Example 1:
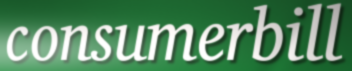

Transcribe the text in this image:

consumerbill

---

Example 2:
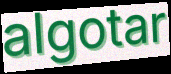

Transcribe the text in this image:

algotar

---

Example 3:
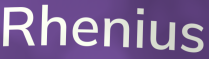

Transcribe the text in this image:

Rhenius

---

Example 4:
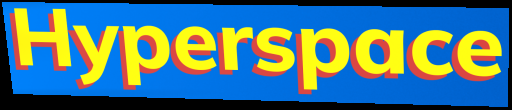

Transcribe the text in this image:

Hyperspace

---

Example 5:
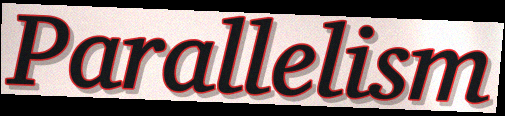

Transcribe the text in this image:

Parallelism